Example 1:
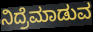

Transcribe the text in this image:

ನಿದ್ರೆಮಾಡುವ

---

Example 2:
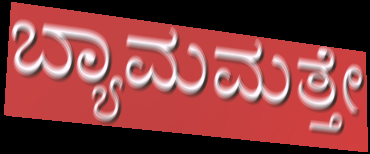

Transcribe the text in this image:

ಬ್ಯಾಮಮತ್ತೇ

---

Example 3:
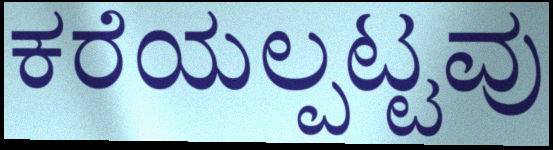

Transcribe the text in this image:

ಕರೆಯಲ್ಪಟ್ಟವು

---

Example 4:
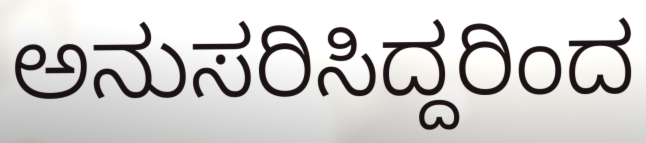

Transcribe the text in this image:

ಅನುಸರಿಸಿದ್ದರಿಂದ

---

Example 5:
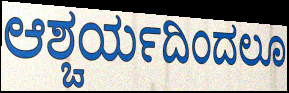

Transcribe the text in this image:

ಆಶ್ಚರ್ಯದಿಂದಲೂ